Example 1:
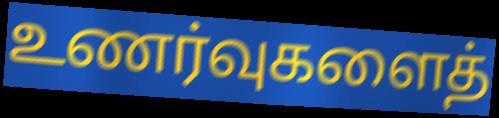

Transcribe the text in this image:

உணர்வுகளைத்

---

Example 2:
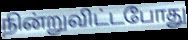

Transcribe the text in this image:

நின்றுவிட்டபோது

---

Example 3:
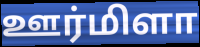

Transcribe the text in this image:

ஊர்மிளா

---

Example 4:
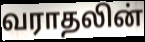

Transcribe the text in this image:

வராதலின்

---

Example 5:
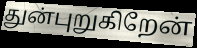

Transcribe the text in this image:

துன்புறுகிறேன்